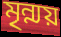
মৃন্ময়